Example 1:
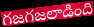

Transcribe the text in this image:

గజగజలాడింది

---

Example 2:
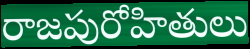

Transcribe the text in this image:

రాజపురోహితులు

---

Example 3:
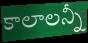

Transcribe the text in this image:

కాలాలన్నీ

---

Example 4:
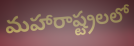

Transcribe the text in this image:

మహారాష్ట్రలలో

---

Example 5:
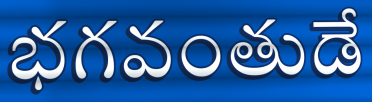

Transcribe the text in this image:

భగవంతుడే